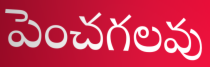
పెంచగలవు